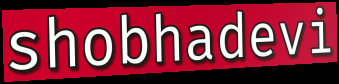
shobhadevi